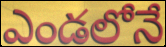
ఎండలోనే